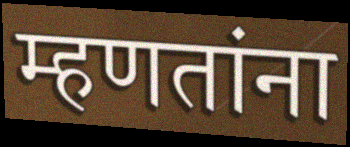
म्हणतांना